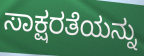
ಸಾಕ್ಷರತೆಯನ್ನು